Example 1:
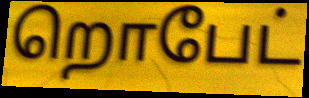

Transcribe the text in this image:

றொபேட்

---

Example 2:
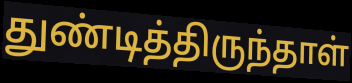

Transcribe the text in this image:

துண்டித்திருந்தாள்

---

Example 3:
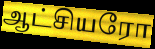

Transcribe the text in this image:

ஆட்சியரோ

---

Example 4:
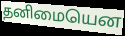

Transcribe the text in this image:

தனிமையென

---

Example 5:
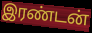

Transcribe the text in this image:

இரண்டன்